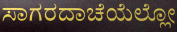
ಸಾಗರದಾಚೆಯೆಲ್ಲೋ